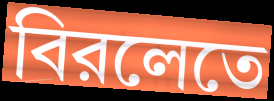
বিরলেতে